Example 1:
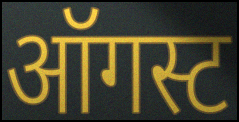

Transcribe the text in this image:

ऑगस्ट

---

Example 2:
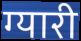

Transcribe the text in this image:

ग्यारी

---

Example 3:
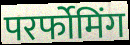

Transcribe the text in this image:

परर्फोमिंग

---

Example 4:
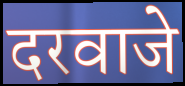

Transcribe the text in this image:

दरवाजे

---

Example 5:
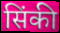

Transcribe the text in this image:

सिंकी